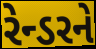
રેન્ડરને